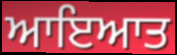
ਆਇਆਤ